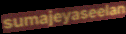
sumajeyaseelan